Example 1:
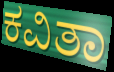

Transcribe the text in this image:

ಕವಿತಾ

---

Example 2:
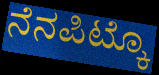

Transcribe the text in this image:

ನೆನಪಿಟ್ಕೊ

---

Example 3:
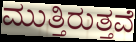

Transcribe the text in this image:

ಮುತ್ತಿರುತ್ತವೆ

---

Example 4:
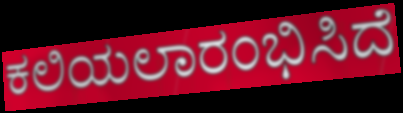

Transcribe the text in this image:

ಕಲಿಯಲಾರಂಭಿಸಿದೆ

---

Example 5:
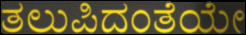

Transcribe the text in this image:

ತಲುಪಿದಂತೆಯೇ